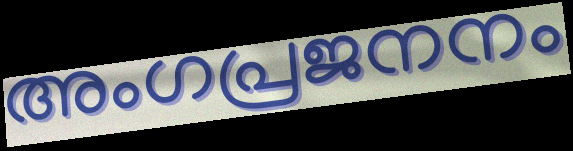
അംഗപ്രജനനം